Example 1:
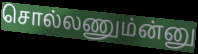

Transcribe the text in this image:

சொல்லணும்ன்னு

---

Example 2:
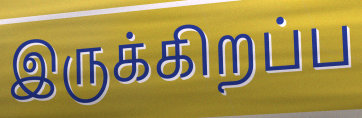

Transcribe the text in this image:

இருக்கிறப்ப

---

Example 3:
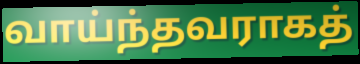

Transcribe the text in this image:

வாய்ந்தவராகத்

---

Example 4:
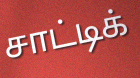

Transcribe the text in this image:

சாட்டிக்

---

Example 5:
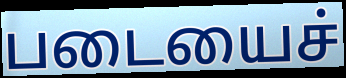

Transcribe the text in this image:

படையைச்